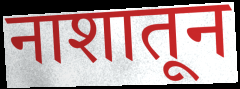
नाशातून